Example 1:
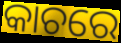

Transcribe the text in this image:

କାଚରେ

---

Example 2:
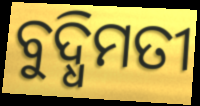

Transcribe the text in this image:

ବୁଦ୍ଧିମତୀ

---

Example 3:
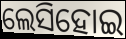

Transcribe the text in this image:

ଲେସିହୋଇ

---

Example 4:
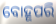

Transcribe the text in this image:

ବୋହୂପରି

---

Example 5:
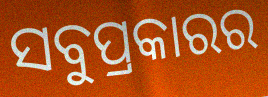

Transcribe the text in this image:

ସବୁପ୍ରକାରର